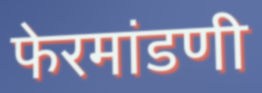
फेरमांडणी